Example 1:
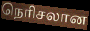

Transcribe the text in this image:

நெரிசலான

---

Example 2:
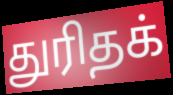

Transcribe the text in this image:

துரிதக்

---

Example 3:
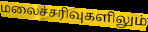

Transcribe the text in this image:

மலைச்சரிவுகளிலும்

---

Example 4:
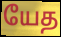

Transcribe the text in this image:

யேத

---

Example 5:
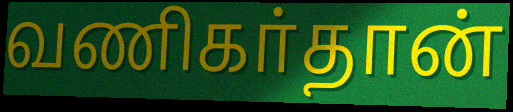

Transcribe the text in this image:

வணிகர்தான்